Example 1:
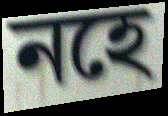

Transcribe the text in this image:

নহে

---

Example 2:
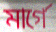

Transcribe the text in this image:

মার্গে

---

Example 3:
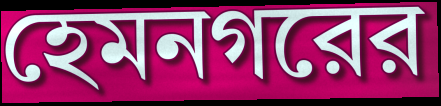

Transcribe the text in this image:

হেমনগরের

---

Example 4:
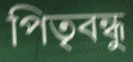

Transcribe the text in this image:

পিতৃবন্ধু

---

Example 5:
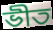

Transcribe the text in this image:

ভীত